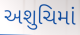
અશુચિમાં